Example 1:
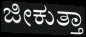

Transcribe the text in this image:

ಜೀಕುತ್ತಾ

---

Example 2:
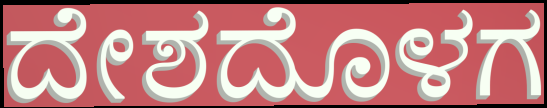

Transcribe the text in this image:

ದೇಶದೊಳಗ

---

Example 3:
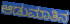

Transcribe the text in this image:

ಆಡುಮಾತಿನ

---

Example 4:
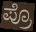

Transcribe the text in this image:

ಪ್ರೊ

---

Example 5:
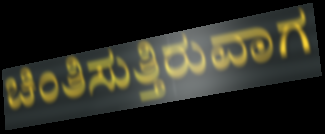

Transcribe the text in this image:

ಚಿಂತಿಸುತ್ತಿರುವಾಗ